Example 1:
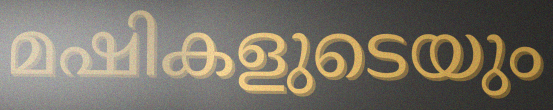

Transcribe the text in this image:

മഷികളുടെയും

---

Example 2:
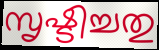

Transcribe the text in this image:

സൃഷ്ടിച്ചതു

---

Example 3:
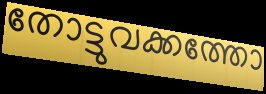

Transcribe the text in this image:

തോട്ടുവക്കത്തോ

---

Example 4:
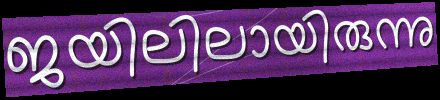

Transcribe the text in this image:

ജയിലിലായിരുന്നു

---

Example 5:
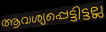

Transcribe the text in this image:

ആവശ്യപ്പെട്ടിട്ടല്ല